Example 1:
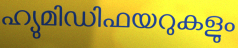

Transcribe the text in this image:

ഹ്യുമിഡിഫയറുകളും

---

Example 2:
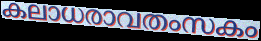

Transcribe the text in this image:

കലാധരാവതംസകം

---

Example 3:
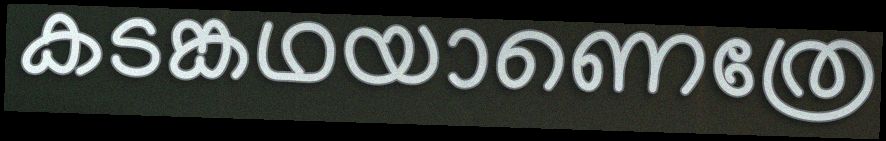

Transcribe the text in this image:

കടങ്കഥയാണെത്രേ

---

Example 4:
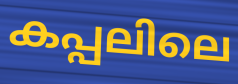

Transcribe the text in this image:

കപ്പലിലെ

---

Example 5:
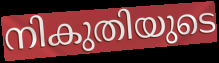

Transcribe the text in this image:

നികുതിയുടെ